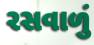
રસવાળું